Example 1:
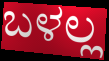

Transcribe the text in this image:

ಬಳಲ್ಲ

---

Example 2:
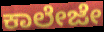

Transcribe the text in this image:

ಕಾಲೇಜೇ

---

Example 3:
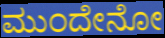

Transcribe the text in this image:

ಮುಂದೇನೋ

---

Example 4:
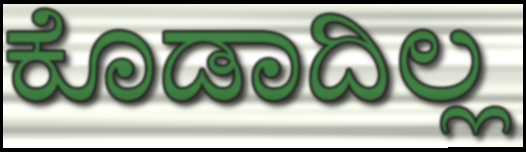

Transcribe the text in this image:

ಕೊಡಾದಿಲ್ಲ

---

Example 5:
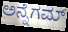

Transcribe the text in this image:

ಅನ್ನೆಗಮ್